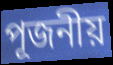
পূজনীয়